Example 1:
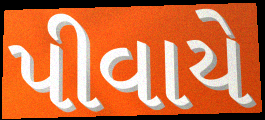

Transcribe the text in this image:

પીવાયે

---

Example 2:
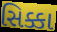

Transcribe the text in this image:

સિક્કા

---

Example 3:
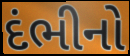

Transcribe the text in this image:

દંભીનો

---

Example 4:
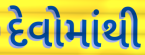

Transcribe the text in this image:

દેવોમાંથી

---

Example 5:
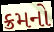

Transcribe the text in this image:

ક્રમનો